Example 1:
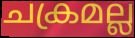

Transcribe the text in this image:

ചക്രമല്ല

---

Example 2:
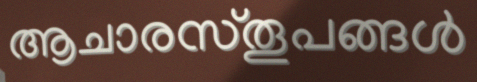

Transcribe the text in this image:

ആചാരസ്തൂപങ്ങൾ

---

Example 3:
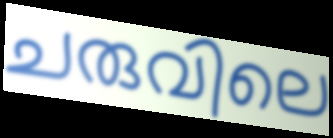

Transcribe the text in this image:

ചരുവിലെ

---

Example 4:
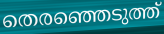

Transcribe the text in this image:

തെരഞ്ഞെടുത്ത്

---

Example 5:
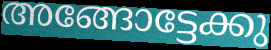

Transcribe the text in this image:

അങ്ങോട്ടേക്കു